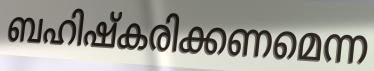
ബഹിഷ്കരിക്കണമെന്ന